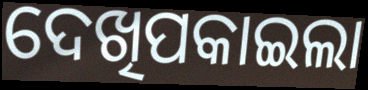
ଦେଖିପକାଇଲା